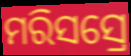
ମରିସସ୍ରେ